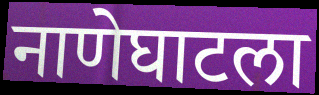
नाणेघाटला